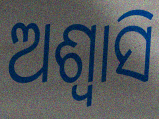
ଅଶ୍ୱାସି